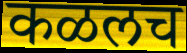
कळलच